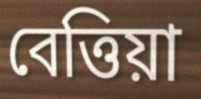
বেত্তিয়া